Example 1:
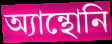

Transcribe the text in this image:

অ্যান্থোনি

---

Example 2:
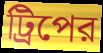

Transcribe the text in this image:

ট্রিপের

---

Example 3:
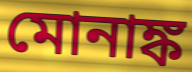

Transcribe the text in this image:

মোনাঙ্ক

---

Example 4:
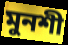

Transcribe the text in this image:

মুনশী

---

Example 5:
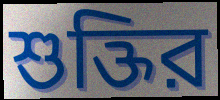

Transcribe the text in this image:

শুক্তির